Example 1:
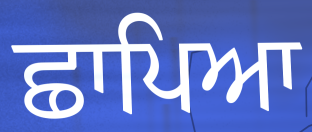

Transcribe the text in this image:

ਛਾਪਿਆ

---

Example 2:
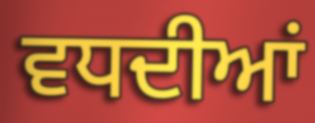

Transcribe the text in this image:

ਵਧਦੀਆਂ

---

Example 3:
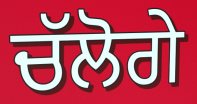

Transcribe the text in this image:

ਚੱਲੋਗੇ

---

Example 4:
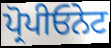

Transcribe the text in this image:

ਪ੍ਰੋਪੀਓਨੇਟ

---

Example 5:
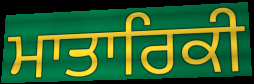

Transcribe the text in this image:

ਮਾਤਾਰਿਕੀ